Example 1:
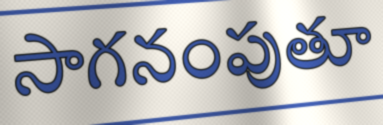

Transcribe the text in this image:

సాగనంపుతూ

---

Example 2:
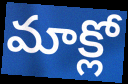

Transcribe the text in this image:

మాక్లో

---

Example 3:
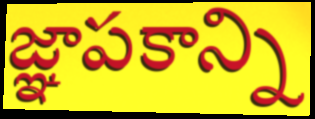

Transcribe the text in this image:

జ్ఞాపకాన్ని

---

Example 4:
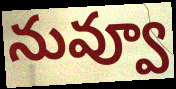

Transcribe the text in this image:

నువ్వూ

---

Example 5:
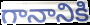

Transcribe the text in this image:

గానానికి